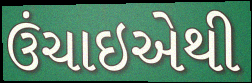
ઉંચાઇએથી